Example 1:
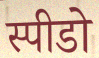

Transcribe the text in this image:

स्पीडो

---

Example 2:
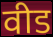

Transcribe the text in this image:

वीड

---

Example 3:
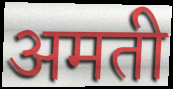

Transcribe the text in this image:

अमती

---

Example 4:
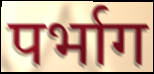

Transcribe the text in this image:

पर्भाग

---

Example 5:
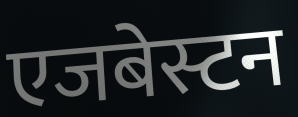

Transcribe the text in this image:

एजबेस्‍टन